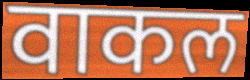
वाकल